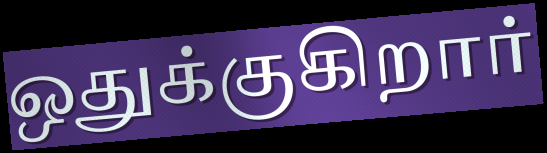
ஒதுக்குகிறார்